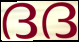
ദദ